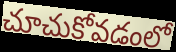
చూచుకోవడంలో